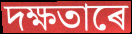
দক্ষতাৰে